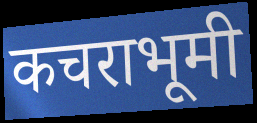
कचराभूमी